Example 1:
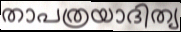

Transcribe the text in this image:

താപത്രയാദിത്യ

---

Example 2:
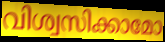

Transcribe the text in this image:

വിശ്വസിക്കാമോ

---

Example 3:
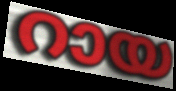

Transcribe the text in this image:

റായ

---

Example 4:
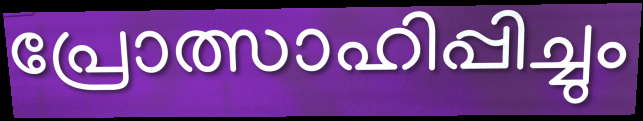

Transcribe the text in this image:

പ്രോത്സാഹിപ്പിച്ചും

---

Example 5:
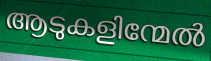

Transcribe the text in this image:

ആടുകളിന്മേൽ